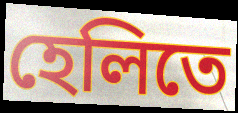
হেলিতে